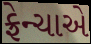
ફ્રેન્ચાએ